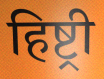
हिष्ट्री